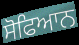
ਸੋਫਿਆਨ